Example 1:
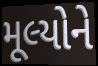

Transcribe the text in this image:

મૂલ્યોને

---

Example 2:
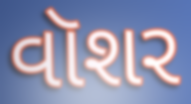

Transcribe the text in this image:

વૉશર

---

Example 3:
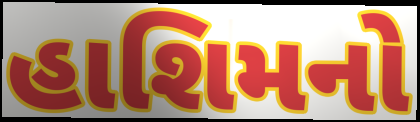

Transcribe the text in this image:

હાશિમનો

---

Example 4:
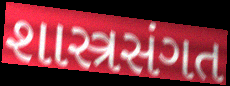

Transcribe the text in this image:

શાસ્ત્રસંગત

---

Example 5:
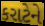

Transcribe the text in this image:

કરાટેને